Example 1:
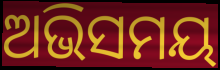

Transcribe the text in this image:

ଅଭିସମୟ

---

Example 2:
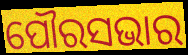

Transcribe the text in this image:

ପୌରସଭାର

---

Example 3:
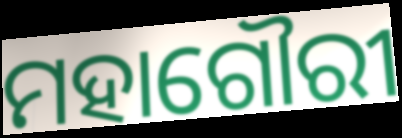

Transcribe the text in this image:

ମହାଗୌରୀ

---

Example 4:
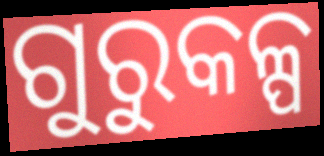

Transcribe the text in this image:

ଗୁରୁକଳ୍ପ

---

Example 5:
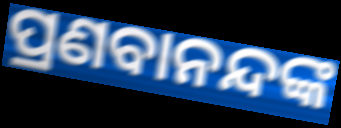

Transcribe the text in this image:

ପ୍ରଣବାନନ୍ଦଙ୍କ